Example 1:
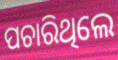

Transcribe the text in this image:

ପଚାରିଥିଲେ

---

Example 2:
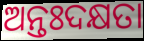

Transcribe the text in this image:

ଅନ୍ତଃଦକ୍ଷତା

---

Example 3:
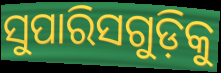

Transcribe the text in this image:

ସୁପାରିସଗୁଡ଼ିକୁ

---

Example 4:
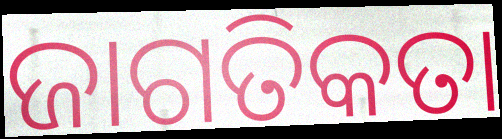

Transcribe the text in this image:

ଜାଗତିକତା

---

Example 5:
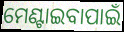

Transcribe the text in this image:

ମେଣ୍ଟାଇବାପାଇଁ